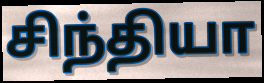
சிந்தியா